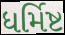
ધર્મિષ્ટ